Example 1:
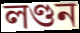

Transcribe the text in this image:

লণ্ডন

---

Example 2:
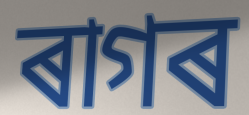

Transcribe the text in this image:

ৰাগৰ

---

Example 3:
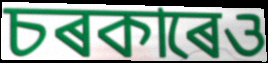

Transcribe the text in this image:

চৰকাৰেও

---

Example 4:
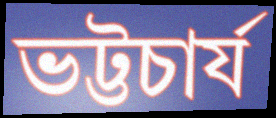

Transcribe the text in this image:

ভট্টচাৰ্য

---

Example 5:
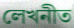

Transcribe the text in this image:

লেখনীত